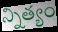
న్నిత్యం